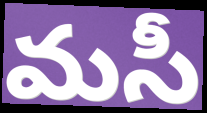
మసీ